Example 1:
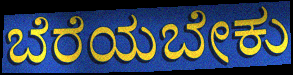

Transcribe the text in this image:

ಬೆರೆಯಬೇಕು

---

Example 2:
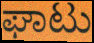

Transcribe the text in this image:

ಘಾಟು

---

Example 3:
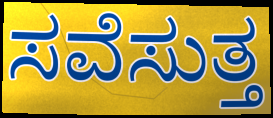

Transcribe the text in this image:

ಸವೆಸುತ್ತ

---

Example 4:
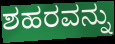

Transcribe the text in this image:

ಶಹರವನ್ನು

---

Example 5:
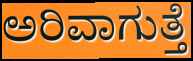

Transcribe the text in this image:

ಅರಿವಾಗುತ್ತೆ